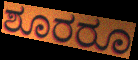
ಶೂರರೂ